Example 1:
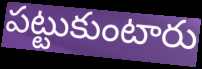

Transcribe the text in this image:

పట్టుకుంటారు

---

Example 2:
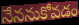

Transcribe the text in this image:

నేననుకోవడం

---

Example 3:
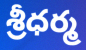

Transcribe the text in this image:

శ్రీధర్మ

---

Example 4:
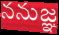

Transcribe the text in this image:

ననుజ్ఞ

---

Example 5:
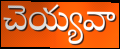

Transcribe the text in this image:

చెయ్యవా